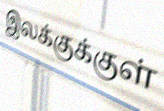
இலக்குக்குள்